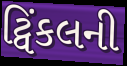
ટ્વિંકલની